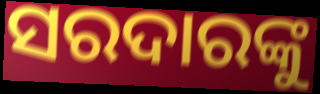
ସରଦାରଙ୍କୁ